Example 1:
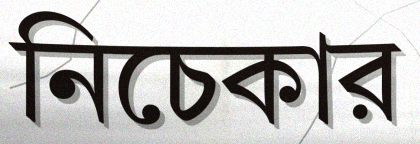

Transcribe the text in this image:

নিচেকার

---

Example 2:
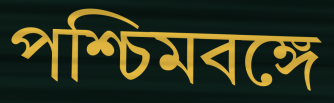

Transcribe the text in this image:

পশ্চিমবঙ্গে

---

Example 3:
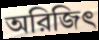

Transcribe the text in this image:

অরিজিৎ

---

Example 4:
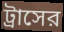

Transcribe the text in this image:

ট্রাসের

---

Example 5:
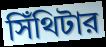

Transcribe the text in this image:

সিঁথিটার